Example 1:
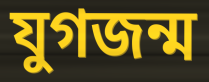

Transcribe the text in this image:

যুগজন্ম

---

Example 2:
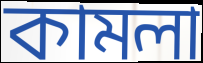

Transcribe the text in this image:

কামলা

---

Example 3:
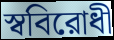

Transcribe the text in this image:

স্ববিরোধী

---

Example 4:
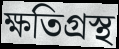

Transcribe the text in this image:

ক্ষতিগ্রস্থ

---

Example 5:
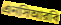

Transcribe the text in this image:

এনসিআরবি